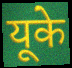
यूके